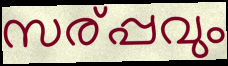
സര്പ്പവും